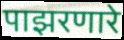
पाझरणारे